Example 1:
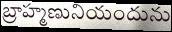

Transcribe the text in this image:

బ్రాహ్మణునియందును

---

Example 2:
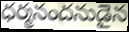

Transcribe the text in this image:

ధర్మనందనుడైన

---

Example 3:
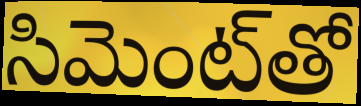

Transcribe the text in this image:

సిమెంట్‌తో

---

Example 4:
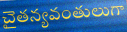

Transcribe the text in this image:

చైతన్యవంతులుగా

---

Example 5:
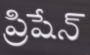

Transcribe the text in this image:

ప్రిషేన్